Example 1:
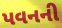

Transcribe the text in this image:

પવનની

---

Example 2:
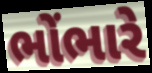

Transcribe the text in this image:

ભોંભારે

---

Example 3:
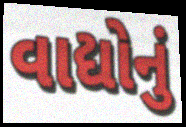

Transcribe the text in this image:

વાદ્યોનું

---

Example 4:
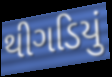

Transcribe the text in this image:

થીગડિયું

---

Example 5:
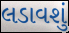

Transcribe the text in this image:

લડાવશું